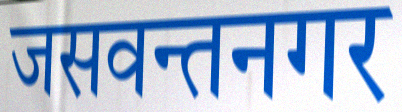
जसवन्तनगर